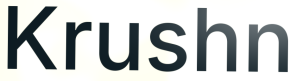
Krushn